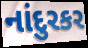
નાંદુરકર